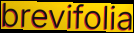
brevifolia